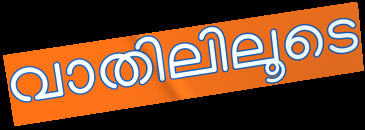
വാതിലിലൂടെ